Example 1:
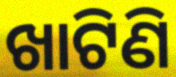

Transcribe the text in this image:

ଖାଟିଣି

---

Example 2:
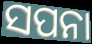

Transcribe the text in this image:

ସପନା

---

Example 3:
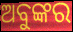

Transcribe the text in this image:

ଅବୁଙ୍କର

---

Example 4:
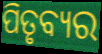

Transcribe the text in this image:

ପିତୃବ୍ୟର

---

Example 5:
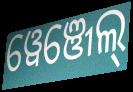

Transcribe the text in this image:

ୱେଞ୍ଜେଲ୍